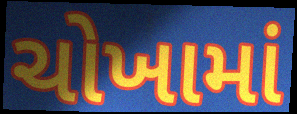
ચોખામાં